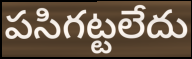
పసిగట్టలేదు